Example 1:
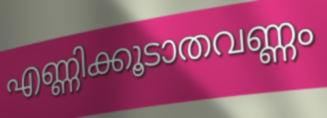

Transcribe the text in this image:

എണ്ണിക്കൂടാതവണ്ണം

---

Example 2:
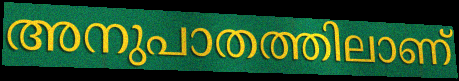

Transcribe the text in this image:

അനുപാതത്തിലാണ്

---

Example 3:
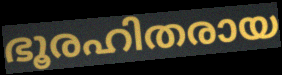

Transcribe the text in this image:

ഭൂരഹിതരായ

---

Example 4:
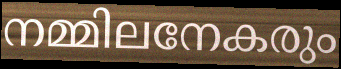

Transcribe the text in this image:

നമ്മിലനേകരും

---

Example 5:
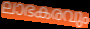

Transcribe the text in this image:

ലാഭകരവും